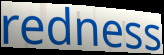
redness